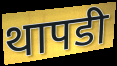
थापडी